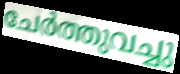
ചേർത്തുവച്ചു